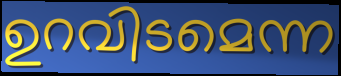
ഉറവിടമെന്ന